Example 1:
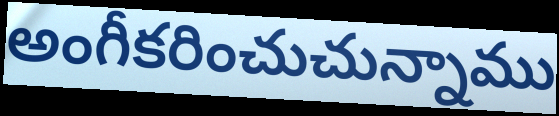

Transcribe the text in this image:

అంగీకరించుచున్నాము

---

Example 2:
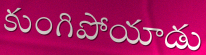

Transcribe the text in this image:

కుంగిపోయాడు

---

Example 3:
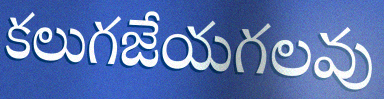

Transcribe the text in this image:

కలుగజేయగలవు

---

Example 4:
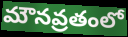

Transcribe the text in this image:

మౌనవ్రతంలో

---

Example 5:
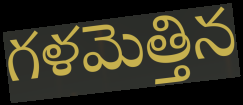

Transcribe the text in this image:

గళమెత్తిన